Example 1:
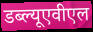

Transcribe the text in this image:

डब्ल्यूएवीएल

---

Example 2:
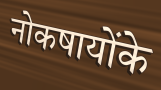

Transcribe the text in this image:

नोकषायोंके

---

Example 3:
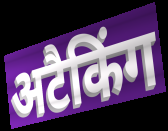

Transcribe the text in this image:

अटैकिंग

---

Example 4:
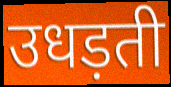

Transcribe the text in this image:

उधड़ती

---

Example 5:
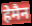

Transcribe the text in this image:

हेमैन